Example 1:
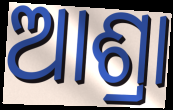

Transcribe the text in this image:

ଆଶ୍ରା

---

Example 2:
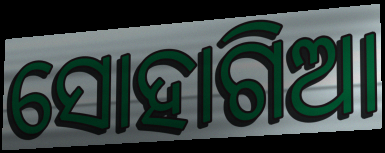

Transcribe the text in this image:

ସୋହାଗିଆ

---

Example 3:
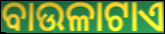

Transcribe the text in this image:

ବାଉଳାଟାଏ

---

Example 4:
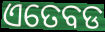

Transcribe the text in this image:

ଏତେବଡ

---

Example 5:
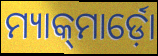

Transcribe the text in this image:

ମ୍ୟାକ୍‍ମାର୍ଡ଼ୋ